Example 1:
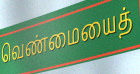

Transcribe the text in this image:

வெண்மையைத்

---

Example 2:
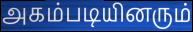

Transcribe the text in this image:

அகம்படியினரும்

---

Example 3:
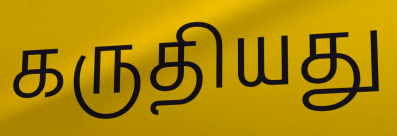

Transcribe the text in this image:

கருதியது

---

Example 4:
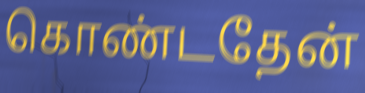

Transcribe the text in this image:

கொண்டதேன்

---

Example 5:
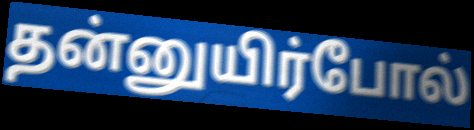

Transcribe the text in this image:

தன்னுயிர்போல்